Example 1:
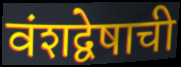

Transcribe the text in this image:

वंशद्वेषाची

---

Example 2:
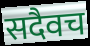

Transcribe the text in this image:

सदैवच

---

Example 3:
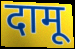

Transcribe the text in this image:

दामू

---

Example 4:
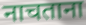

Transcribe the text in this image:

नाचताना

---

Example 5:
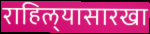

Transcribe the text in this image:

राहिल्यासारखा